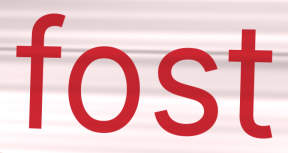
fost